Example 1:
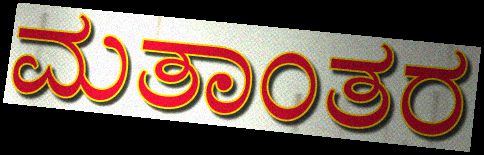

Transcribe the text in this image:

ಮತಾಂತರ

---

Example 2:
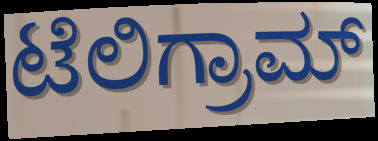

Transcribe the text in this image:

ಟೆಲಿಗ್ರಾಮ್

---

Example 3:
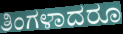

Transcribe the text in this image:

ತಿಂಗಳಾದರೂ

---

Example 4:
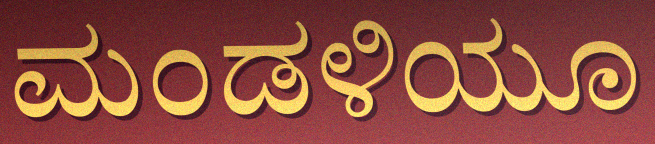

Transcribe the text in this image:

ಮಂಡಳಿಯೂ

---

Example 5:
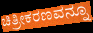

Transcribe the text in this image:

ಚಿತ್ರೀಕರಣವನ್ನೂ